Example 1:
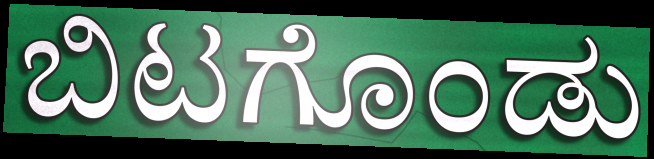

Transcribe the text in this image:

ಬಿಟಗೊಂಡು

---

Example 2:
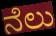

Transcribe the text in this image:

ನೆಲು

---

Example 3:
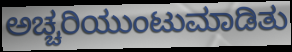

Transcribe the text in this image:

ಅಚ್ಚರಿಯುಂಟುಮಾಡಿತು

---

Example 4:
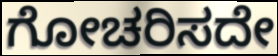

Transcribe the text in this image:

ಗೋಚರಿಸದೇ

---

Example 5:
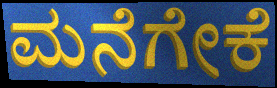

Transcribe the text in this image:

ಮನೆಗೇಕೆ